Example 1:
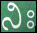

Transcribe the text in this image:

ನಿಃ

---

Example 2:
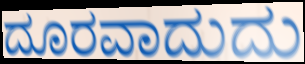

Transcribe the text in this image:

ದೂರವಾದುದು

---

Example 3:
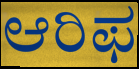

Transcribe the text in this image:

ಆರಿಫ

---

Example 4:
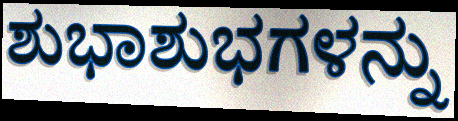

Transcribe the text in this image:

ಶುಭಾಶುಭಗಳನ್ನು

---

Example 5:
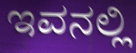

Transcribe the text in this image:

ಇವನಲ್ಲಿ